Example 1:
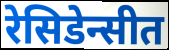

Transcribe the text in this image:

रेसिडेन्सीत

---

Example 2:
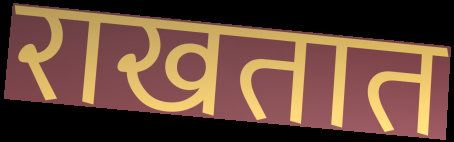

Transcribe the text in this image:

राखतात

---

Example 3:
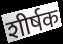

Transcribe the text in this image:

शीर्षक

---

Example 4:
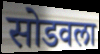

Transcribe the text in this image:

सोडवला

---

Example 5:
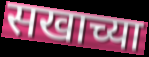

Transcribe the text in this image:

सखाच्या